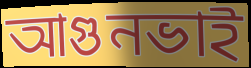
আগুনভাই